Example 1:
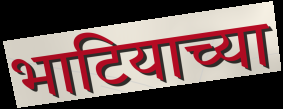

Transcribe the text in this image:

भाटियाच्या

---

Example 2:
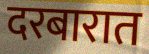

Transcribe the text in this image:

दरबारात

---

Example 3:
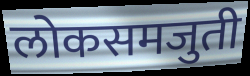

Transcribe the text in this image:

लोकसमजुती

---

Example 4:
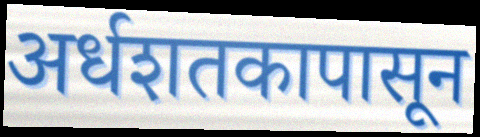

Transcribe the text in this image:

अर्धशतकापासून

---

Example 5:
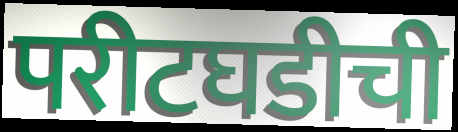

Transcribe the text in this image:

परीटघडीची